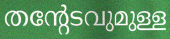
തന്റേടവുമുള്ള